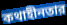
কথাহীনতার